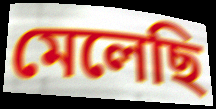
মেলেছি